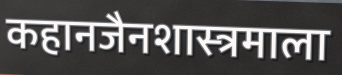
कहानजैनशास्त्रमाला